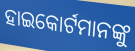
ହାଇକୋର୍ଟମାନଙ୍କୁ